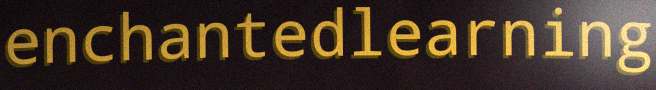
enchantedlearning